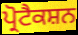
ਪ੍ਰੋਟੈਕਸ਼ਨ